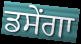
ਡਸੇਂਗਾ